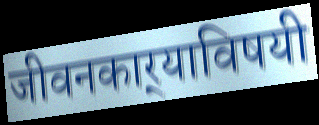
जीवनकार्याविषयी